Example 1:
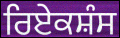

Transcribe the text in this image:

ਰਿਏਕਸ਼ੰਸ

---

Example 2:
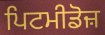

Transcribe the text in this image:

ਪਿਟਮੀਡੋਜ਼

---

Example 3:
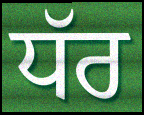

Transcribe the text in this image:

ਧੱਰ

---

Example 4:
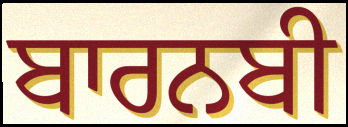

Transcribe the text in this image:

ਬਾਰਨਬੀ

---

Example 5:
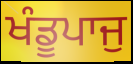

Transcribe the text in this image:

ਖੰਡੂਪਾਜੁ